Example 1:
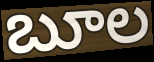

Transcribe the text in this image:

బూల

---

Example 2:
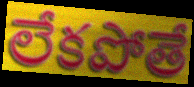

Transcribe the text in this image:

లేకపోతే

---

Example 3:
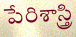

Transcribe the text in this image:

పేరిశాస్త్రి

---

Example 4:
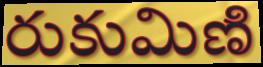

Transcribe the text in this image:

రుకుమిణి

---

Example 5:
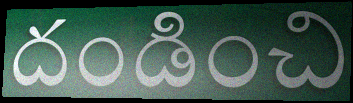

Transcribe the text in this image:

దండించి